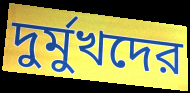
দুর্মুখদের